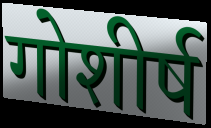
गोशीर्ष